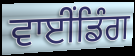
ਵਾਈਂਡਿੰਗ